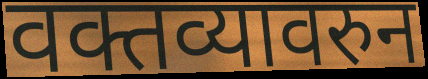
वक्तव्यावरुन